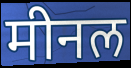
मीनल